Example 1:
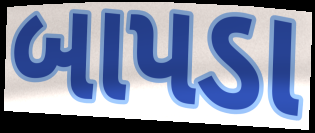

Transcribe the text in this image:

બાપડા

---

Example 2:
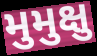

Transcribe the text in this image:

મુમુક્ષુ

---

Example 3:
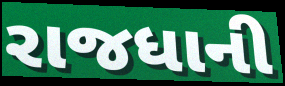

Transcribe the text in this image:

રાજધાની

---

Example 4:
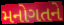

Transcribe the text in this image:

મનોગતને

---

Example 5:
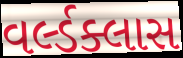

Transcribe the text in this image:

વર્લ્ડક્લાસ